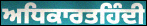
ਅਧਿਕਾਰਤਹਿੰਦੀ